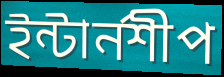
ইন্টার্নশীপ